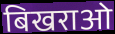
बिखराओ